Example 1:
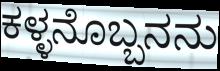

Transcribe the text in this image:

ಕಳ್ಳನೊಬ್ಬನನು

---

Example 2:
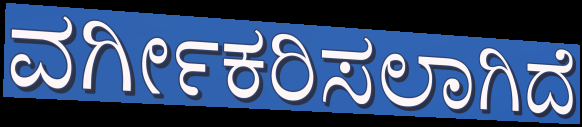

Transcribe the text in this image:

ವರ್ಗೀಕರಿಸಲಾಗಿದೆ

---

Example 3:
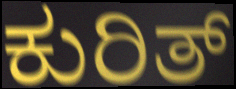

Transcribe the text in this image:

ಕುರಿತ್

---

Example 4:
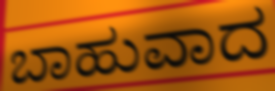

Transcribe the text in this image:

ಬಾಹುವಾದ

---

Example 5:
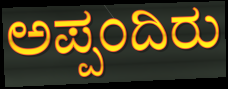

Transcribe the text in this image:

ಅಪ್ಪಂದಿರು